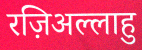
रज़िअल्लाहु